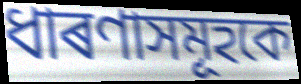
ধাৰণাসমূহকে